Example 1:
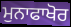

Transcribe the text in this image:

ਮੁਨਾਫਾਖੋਰ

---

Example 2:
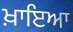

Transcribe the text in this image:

ਖ਼ਾਇਆ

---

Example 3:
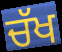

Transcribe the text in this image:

ਚੱਖ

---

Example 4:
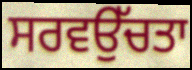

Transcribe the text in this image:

ਸਰਵਉੱਚਤਾ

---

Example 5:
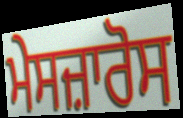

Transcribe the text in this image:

ਮੇਸਜ਼ਾਰੋਸ